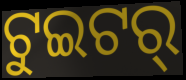
ଟୁଇଟର୍